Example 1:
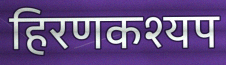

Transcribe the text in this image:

हिरणकश्यप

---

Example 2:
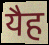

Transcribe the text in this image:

यैह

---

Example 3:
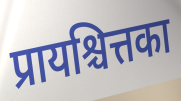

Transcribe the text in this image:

प्रायश्चित्तका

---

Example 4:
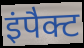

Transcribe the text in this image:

इंपैक्ट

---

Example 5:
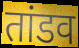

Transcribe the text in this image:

तांडव